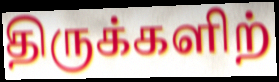
திருக்களிற்